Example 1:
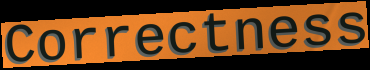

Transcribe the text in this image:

Correctness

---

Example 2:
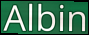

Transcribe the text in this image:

Albin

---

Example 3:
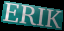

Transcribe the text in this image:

ERIK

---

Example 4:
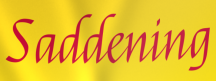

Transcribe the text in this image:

Saddening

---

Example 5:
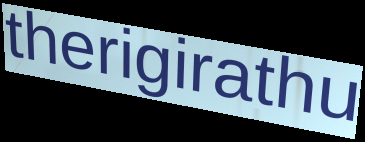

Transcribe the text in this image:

therigirathu